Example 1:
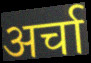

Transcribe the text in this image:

अर्चा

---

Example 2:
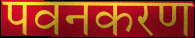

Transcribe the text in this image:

पवनकरण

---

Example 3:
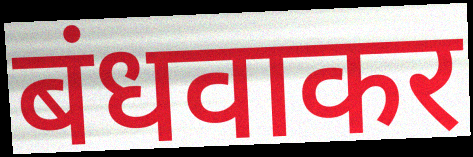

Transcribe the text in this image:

बंधवाकर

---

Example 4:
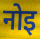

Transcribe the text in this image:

नोइ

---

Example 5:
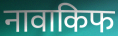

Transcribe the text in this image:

नावाकिफ